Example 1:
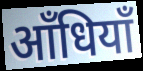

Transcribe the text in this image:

आँधियाँ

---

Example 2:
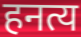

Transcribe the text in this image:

हनत्य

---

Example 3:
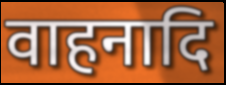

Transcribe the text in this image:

वाहनादि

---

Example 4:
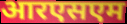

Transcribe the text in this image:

आरएसएम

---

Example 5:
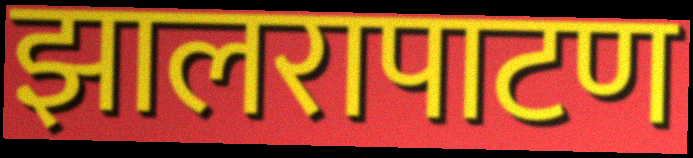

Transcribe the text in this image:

झालरापाटण